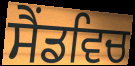
ਸੈਂਡਵਿਚ